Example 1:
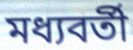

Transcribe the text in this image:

মধ্যবর্তী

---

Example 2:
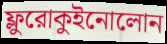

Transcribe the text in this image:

ফ্লুরোকুইনোলোন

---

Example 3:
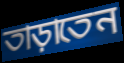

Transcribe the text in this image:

তাড়াতেন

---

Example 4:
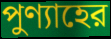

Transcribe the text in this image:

পুণ্যাহের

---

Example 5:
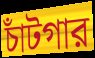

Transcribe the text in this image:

চাঁটগার